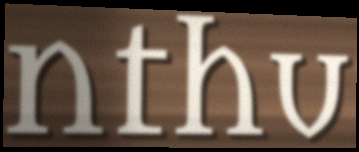
nthu